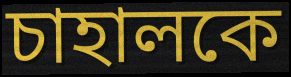
চাহালকে